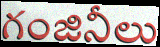
గంజినీలు